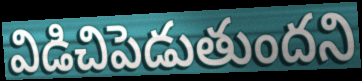
విడిచిపెడుతుందని